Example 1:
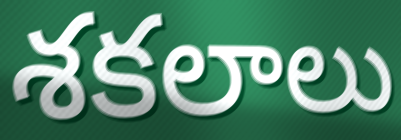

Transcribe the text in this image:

శకలాలు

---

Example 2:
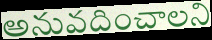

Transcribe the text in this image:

అనువదించాలని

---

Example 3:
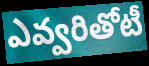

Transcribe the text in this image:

ఎవ్వరితోటీ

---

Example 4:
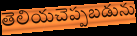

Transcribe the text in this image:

తెలియచెప్పబడును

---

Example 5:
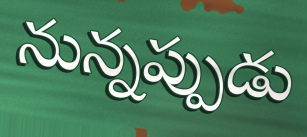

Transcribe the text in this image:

నున్నప్పుడు